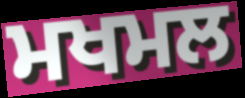
ਮਖਮਲ